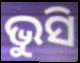
ଭୁସି